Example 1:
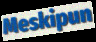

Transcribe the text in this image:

Meskipun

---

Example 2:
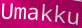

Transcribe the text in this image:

Umakku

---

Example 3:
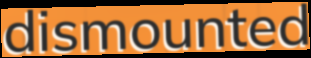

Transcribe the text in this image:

dismounted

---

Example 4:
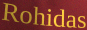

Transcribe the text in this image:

Rohidas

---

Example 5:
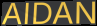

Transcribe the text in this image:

AIDAN